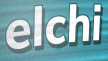
elchi